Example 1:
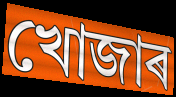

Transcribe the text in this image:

খোজাৰ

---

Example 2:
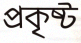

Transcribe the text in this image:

প্ৰকৃষ্ট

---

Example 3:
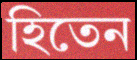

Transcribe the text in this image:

হিতেন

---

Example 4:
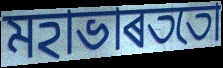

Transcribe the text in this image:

মহাভাৰততো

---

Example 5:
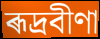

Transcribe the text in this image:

ৰূদ্ৰবীণা